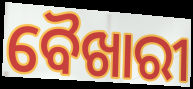
ବୈଖାରୀ